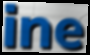
ine